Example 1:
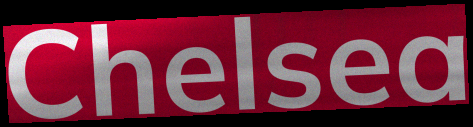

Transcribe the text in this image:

Chelsea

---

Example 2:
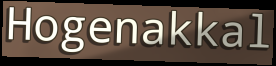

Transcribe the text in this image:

Hogenakkal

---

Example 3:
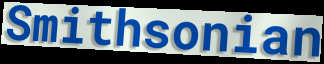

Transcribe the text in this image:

Smithsonian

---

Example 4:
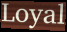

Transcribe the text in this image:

Loyal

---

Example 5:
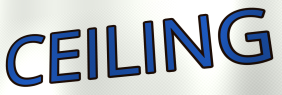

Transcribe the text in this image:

CEILING